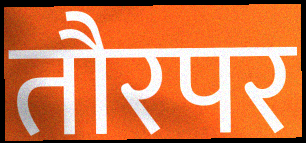
तौरपर